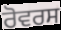
ਰੋਵਰਸ